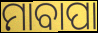
ମାବାପା